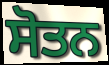
ਸੋਤਨ